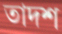
তাদশ